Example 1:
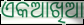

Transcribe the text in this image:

ଏକଆଖିଆ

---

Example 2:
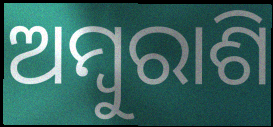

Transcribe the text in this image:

ଅମ୍ୱୁରାଶି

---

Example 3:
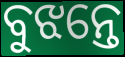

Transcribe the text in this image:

ବୁଝନ୍ତେ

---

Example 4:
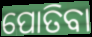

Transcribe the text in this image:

ପୋତିବା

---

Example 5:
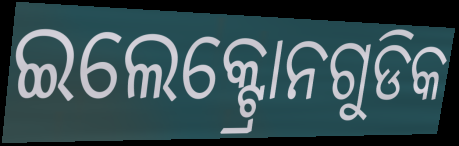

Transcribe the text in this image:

ଇଲେକ୍ଟ୍ରୋନଗୁଡିକ